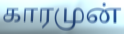
காரமுன்